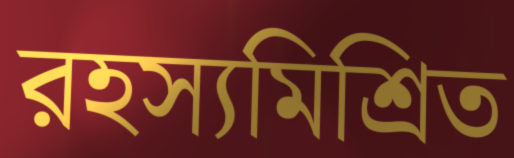
রহস্যমিশ্রিত